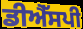
ਡੀਐੱਸਪੀ